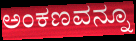
ಅಂಕಣವನ್ನೂ